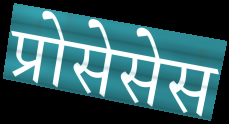
प्रोसेसेस